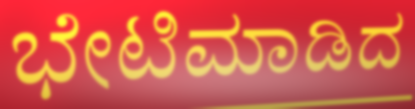
ಭೇಟಿಮಾಡಿದ